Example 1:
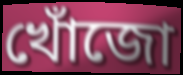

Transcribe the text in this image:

খোঁজো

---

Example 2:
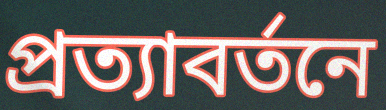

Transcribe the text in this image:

প্রত্যাবর্তনে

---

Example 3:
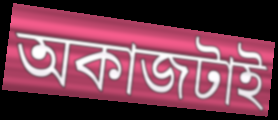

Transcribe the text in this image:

অকাজটাই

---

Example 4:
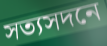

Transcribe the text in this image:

সত্যসদনে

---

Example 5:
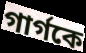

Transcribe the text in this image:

গার্গকে